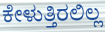
ಕೇಳುತ್ತಿರಲಿಲ್ಲ